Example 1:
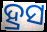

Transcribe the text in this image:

ହ୍ରସ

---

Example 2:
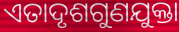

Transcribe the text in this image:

ଏତାଦୃଶଗୁଣଯୁକ୍ତା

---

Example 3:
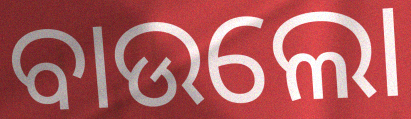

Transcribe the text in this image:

ବାଉଲୋ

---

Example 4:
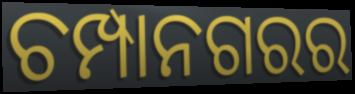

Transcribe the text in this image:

ଚମ୍ପାନଗରର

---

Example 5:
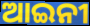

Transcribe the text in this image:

ଆଇନୀ